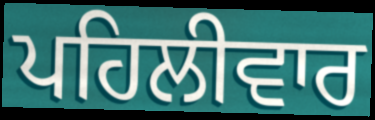
ਪਹਿਲੀਵਾਰ